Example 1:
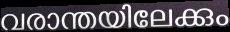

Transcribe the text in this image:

വരാന്തയിലേക്കും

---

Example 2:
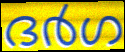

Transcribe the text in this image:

ദർഗ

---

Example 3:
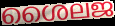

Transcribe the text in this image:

ശൈലജ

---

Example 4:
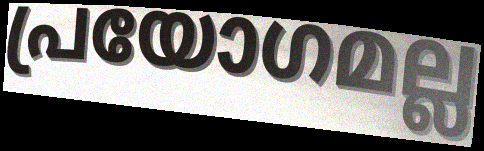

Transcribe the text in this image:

പ്രയോഗമല്ല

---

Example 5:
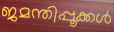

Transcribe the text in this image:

ജമന്തിപ്പൂക്കൾ